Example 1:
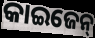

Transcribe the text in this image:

କାଇଜେନ୍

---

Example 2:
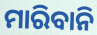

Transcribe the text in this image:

ମାରିବାନି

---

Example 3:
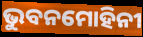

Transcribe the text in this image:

ଭୁବନମୋହିନୀ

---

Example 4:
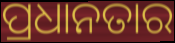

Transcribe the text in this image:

ପ୍ରଧାନତାର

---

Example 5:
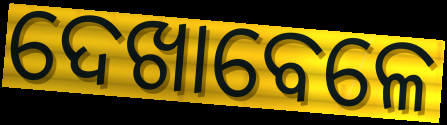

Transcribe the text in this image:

ଦେଖାବେଳେ